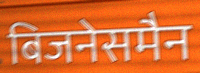
बिजनेसमैन